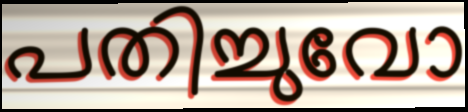
പതിച്ചുവോ